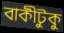
বাকীটুকু